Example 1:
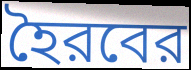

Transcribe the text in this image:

হৈরবের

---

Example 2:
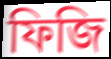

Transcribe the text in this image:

ফিজি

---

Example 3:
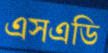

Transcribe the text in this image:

এসএডি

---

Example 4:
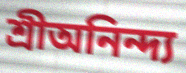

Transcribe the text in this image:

শ্রীঅনিন্দ্য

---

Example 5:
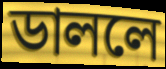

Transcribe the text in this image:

ডাললে